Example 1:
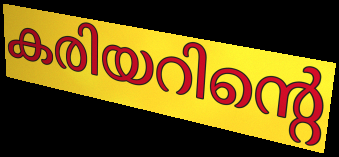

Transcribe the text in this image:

കരിയറിന്റെ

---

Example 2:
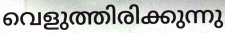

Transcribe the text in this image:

വെളുത്തിരിക്കുന്നു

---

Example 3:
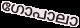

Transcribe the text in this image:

ഗോപാലാ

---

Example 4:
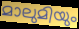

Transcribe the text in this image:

മാലുമിയും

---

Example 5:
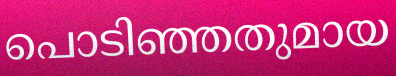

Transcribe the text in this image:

പൊടിഞ്ഞതുമായ